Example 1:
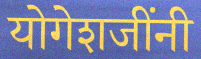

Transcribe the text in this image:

योगेशजींनी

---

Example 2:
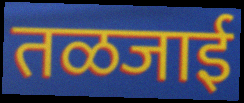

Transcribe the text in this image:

तळजाई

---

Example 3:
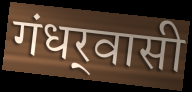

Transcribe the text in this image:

गंधर्वासी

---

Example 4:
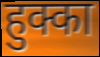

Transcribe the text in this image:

हुक्का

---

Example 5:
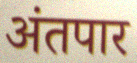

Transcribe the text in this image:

अंतपार